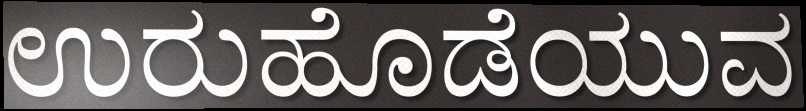
ಉರುಹೊಡೆಯುವ